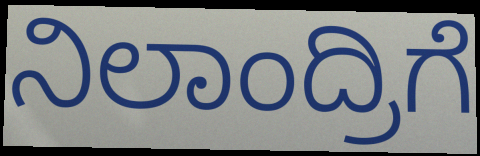
ನಿಲಾಂದ್ರಿಗೆ